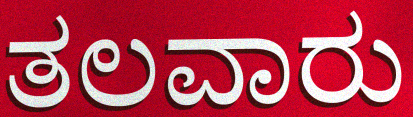
ತಲವಾರು